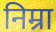
निम्रा